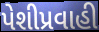
પેશીપ્રવાહી